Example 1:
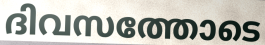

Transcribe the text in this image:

ദിവസത്തോടെ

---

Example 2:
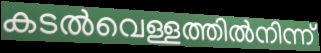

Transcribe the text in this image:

കടൽവെള്ളത്തിൽനിന്ന്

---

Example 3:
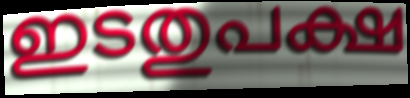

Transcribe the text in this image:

ഇടതുപക്ഷ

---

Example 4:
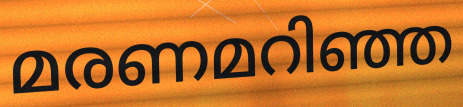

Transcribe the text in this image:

മരണമറിഞ്ഞ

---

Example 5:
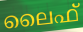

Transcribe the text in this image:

ലൈഫ്